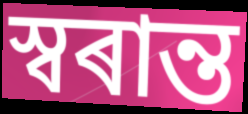
স্বৰান্ত